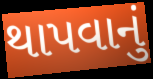
થાપવાનું